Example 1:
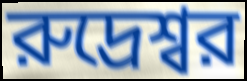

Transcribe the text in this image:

রুদ্রেশ্বর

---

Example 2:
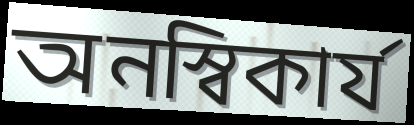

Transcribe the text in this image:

অনস্বিকার্য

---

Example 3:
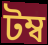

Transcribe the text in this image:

টম্ব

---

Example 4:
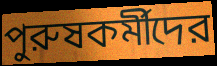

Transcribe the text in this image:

পুরুষকর্মীদের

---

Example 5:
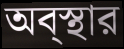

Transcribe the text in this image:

অব্স্থার